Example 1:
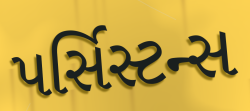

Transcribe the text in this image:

પર્સિસ્ટન્સ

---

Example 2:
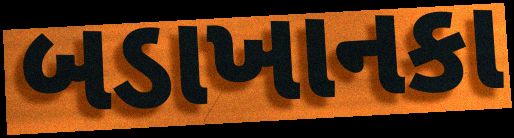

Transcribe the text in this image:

બડાખાનકા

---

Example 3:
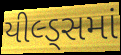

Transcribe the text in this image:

યીલ્ડ્સમાં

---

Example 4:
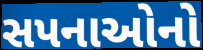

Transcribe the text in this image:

સપનાઓનો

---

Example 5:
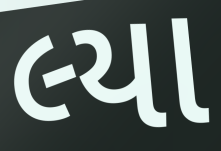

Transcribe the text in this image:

લ્યા